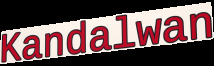
Kandalwan